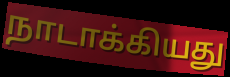
நாடாக்கியது